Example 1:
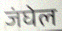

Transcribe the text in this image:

जंघेल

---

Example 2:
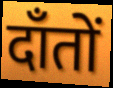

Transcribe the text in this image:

दाँतों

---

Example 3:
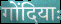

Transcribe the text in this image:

गोंदियाः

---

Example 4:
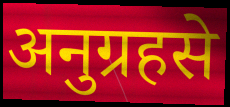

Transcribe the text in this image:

अनुग्रहसे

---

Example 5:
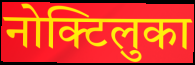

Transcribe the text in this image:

नोक्टिलुका